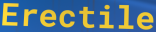
Erectile